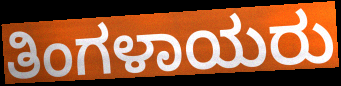
ತಿಂಗಳಾಯರು